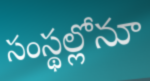
సంస్థల్లోనూ